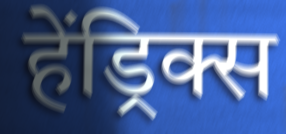
हेंड्रिक्स